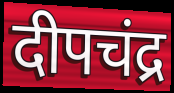
दीपचंद्र